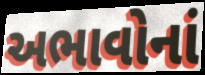
અભાવોનાં